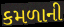
કમળાની